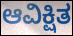
ಆವಿಕ್ಷಿತ